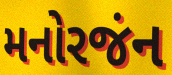
મનોરજંન